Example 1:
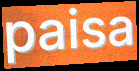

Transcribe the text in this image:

paisa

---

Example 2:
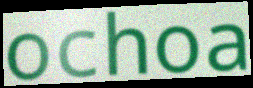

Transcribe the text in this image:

ochoa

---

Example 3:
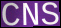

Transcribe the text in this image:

CNS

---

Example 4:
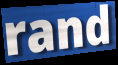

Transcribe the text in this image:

rand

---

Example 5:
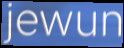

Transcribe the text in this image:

jewun